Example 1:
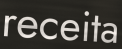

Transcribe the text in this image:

receita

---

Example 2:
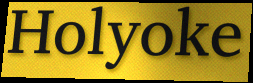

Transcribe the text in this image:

Holyoke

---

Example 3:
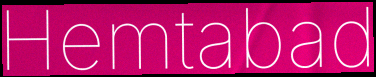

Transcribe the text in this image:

Hemtabad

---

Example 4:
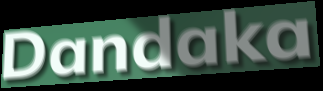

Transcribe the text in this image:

Dandaka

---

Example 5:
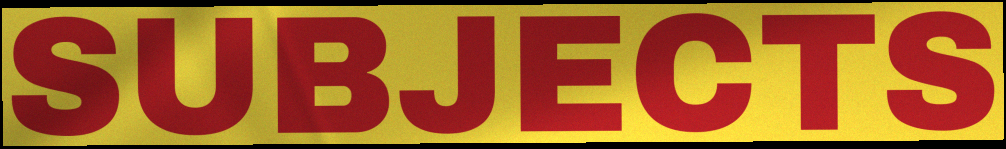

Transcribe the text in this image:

SUBJECTS